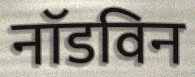
नॉडविन